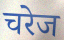
चरेज